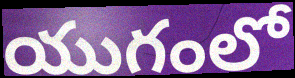
యుగంలో